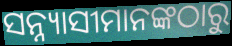
ସନ୍ନ୍ୟାସୀମାନଙ୍କଠାରୁ